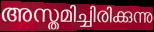
അസ്തമിച്ചിരിക്കുന്നു